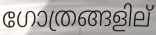
ഗോത്രങ്ങളില്